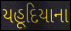
યહૂદિયાના